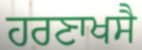
ਹਰਣਾਖਸੈ